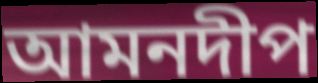
আমনদীপ